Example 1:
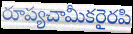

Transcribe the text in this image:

రూప్యచామీకరైరపి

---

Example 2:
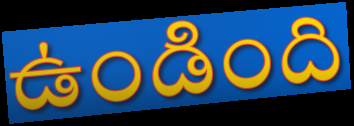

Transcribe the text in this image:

ఉండింది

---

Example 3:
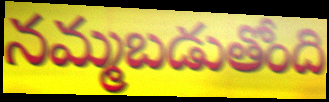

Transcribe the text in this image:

నమ్మబడుతోంది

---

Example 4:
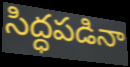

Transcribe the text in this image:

సిద్ధపడినా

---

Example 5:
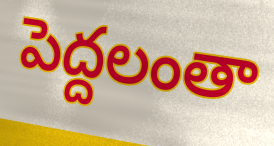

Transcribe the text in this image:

పెద్దలంతా